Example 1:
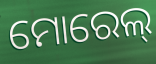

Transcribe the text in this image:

ମୋରେଲ୍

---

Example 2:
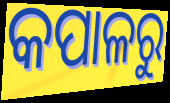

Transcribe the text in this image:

କପାଳରୁ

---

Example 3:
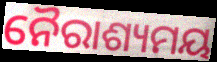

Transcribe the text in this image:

ନୈରାଶ୍ୟମୟ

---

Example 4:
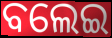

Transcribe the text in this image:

ବଲେଇ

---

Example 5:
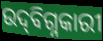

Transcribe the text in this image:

ଉଦ୍‌ବିଗ୍ନକାରୀ